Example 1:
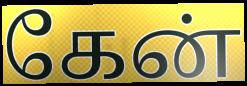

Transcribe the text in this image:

கேன்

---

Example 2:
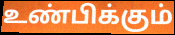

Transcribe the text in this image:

உண்பிக்கும்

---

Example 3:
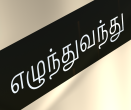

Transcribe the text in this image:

எழுந்துவந்து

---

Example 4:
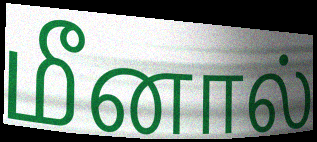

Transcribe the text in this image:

மீனால்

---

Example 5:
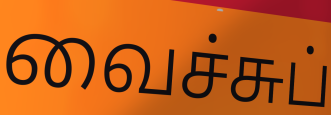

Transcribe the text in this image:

வைச்சுப்